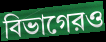
বিভাগেরও